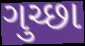
ગુચ્છા